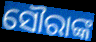
ସୌରାଙ୍କ